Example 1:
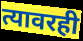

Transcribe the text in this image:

त्यावरही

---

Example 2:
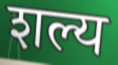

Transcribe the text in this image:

शल्‍य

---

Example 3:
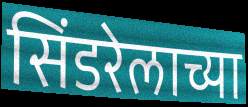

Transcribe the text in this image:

सिंडरेलाच्या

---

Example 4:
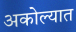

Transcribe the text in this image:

अकोल्यात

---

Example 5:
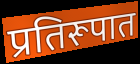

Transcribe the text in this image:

प्रतिरूपात